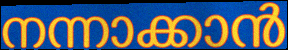
നന്നാക്കാൻ